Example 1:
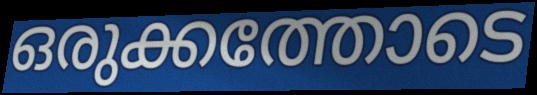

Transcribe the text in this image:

ഒരുക്കത്തോടെ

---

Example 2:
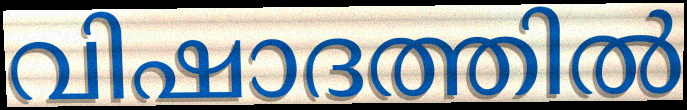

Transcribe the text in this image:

വിഷാദത്തിൽ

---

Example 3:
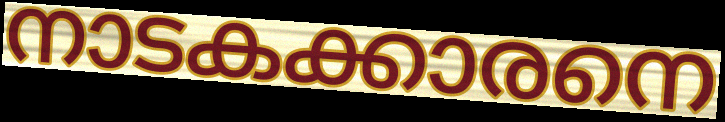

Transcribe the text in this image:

നാടകക്കാരനെ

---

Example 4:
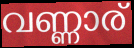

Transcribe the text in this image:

വണ്ണാര്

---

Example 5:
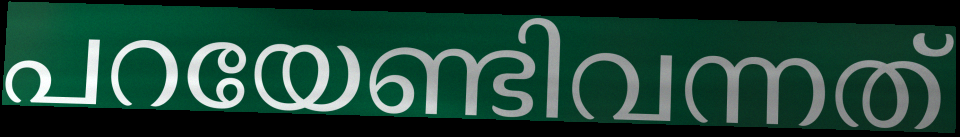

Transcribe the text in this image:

പറയേണ്ടിവന്നത്